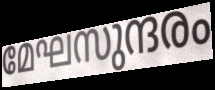
മേഘസുന്ദരം